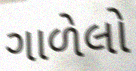
ગાળેલો